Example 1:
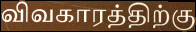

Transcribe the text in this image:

விவகாரத்திற்கு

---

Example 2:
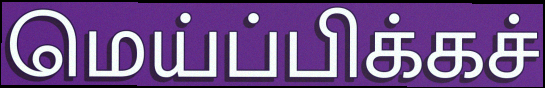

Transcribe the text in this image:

மெய்ப்பிக்கச்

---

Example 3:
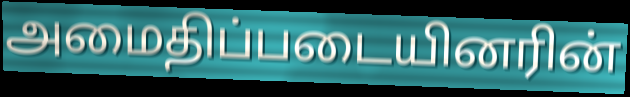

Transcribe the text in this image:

அமைதிப்படையினரின்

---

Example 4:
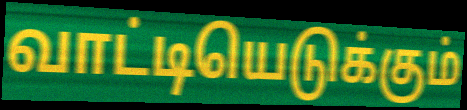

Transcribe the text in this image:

வாட்டியெடுக்கும்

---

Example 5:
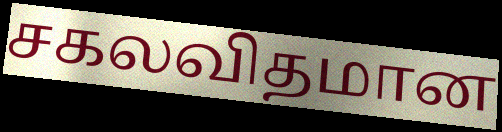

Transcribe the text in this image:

சகலவிதமான